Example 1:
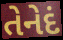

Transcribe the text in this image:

તેનેદં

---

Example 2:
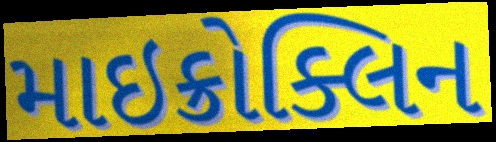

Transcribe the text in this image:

માઇક્રોક્લિન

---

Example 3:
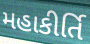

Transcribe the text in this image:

મહાકીર્તિ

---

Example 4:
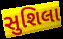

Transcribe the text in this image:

સુશિલા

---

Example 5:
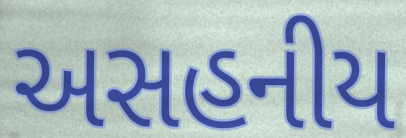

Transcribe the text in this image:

અસહનીય